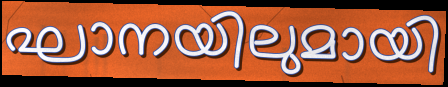
ഘാനയിലുമായി